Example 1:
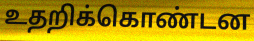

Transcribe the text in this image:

உதறிக்கொண்டன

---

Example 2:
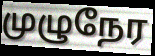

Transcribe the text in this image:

முழுநேர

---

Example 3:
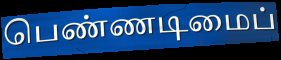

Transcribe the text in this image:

பெண்ணடிமைப்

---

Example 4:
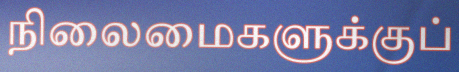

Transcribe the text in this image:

நிலைமைகளுக்குப்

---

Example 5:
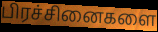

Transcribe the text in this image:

பிரச்சினைகளை